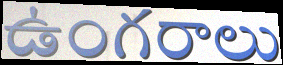
ఉంగరాలు